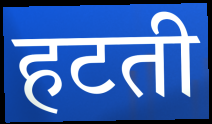
हटती